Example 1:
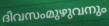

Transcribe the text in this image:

ദിവസംമുഴുവനും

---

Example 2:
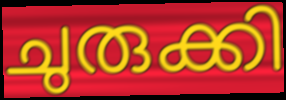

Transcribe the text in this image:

ചുരുക്കി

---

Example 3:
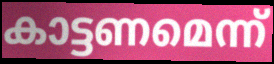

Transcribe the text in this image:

കാട്ടണമെന്ന്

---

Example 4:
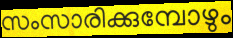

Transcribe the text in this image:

സംസാരിക്കുമ്പോഴും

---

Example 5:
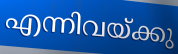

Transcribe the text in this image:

എന്നിവയ്ക്കു